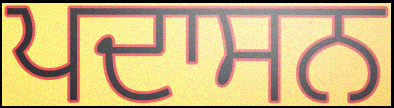
ਪਦਾਸਨ